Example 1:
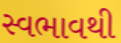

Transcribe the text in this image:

સ્વભાવથી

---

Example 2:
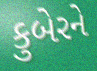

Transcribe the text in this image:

કુબેરને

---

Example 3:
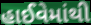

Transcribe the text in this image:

હાઈવેમાંથી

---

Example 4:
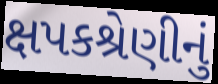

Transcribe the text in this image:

ક્ષપકશ્રેણીનું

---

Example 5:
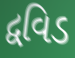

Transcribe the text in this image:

દ્વવિડ